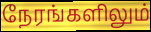
நேரங்களிலும்